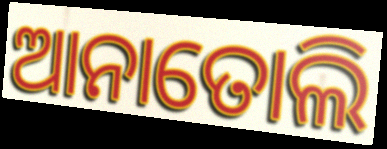
ଆନାତୋଲି